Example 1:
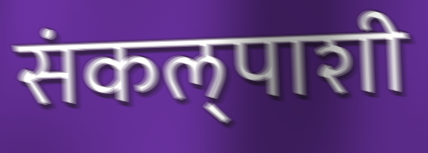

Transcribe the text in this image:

संकल्पाशी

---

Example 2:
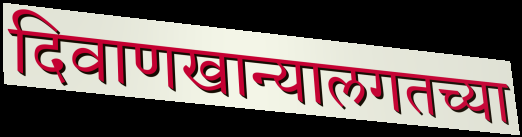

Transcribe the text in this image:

दिवाणखान्यालगतच्या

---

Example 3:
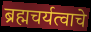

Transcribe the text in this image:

ब्रह्मचर्यत्वाचे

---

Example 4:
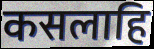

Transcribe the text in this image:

कसलाहि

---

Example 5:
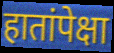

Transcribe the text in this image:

हातांपेक्षा